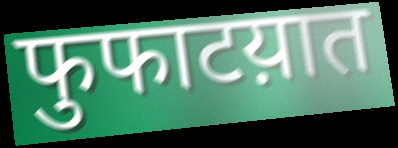
फुफाटय़ात